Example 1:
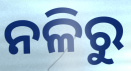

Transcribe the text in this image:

ନଳିରୁ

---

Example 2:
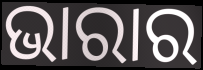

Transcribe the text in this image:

ଭାରାର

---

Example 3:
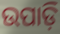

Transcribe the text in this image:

ଉପାଡ଼ି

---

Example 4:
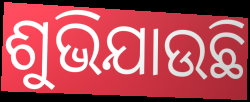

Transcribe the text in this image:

ଶୁଭିଯାଉଛି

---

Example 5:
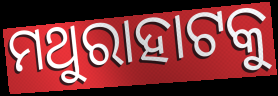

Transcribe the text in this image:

ମଥୁରାହାଟକୁ